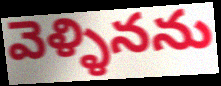
వెళ్ళినను